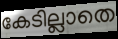
കേടില്ലാതെ